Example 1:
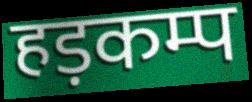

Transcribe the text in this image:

हड़कम्प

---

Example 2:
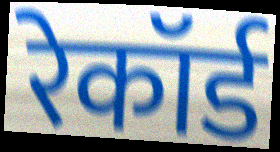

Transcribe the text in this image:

रेकॉर्ड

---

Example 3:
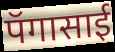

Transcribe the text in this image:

पॅगासाई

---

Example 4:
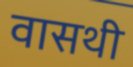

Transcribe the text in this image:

वासथी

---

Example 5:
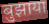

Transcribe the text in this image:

बुझाया